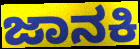
ಜಾನಕಿ